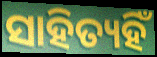
ସାହିତ୍ୟହିଁ